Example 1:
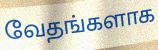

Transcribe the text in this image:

வேதங்களாக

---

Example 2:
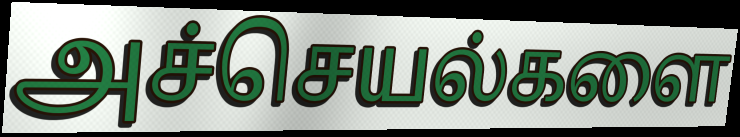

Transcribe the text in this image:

அச்செயல்களை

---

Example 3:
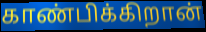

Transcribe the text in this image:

காண்பிக்கிறான்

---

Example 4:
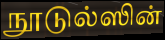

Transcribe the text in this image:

நூடுல்ஸின்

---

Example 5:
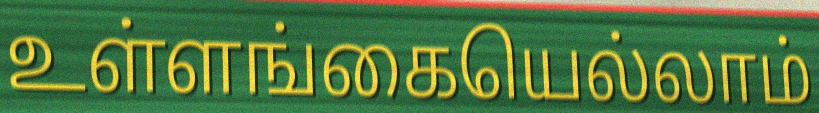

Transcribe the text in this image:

உள்ளங்கையெல்லாம்